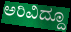
ಅರಿವಿದ್ದೂ